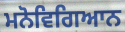
ਮਨੋਵਿਗਿਆਨ